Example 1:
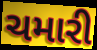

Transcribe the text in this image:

ચમારી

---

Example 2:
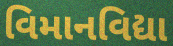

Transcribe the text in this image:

વિમાનવિદ્યા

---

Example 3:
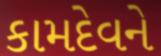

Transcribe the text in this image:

કામદેવને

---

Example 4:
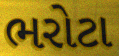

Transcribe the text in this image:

ભરોટા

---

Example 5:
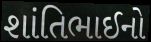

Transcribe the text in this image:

શાંતિભાઈનો